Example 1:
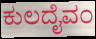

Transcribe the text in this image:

ಕುಲದೈವಂ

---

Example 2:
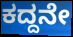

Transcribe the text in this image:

ಕದ್ದನೇ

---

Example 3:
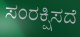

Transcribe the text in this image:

ಸಂರಕ್ಷಿಸದೆ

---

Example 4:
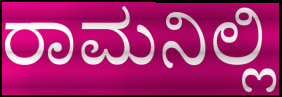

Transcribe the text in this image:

ರಾಮನಿಲ್ಲಿ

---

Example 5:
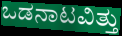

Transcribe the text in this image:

ಒಡನಾಟವಿತ್ತು